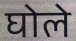
घोले